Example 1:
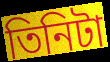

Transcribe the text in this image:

তিনিটা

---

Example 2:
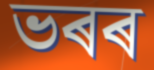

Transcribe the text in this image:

ভৰৰ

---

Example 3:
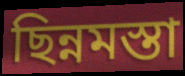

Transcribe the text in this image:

ছিন্নমস্তা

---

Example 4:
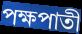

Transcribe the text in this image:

পক্ষপাতী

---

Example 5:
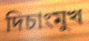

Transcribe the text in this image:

দিচাংমুখ